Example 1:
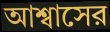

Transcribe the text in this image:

আশ্বাসের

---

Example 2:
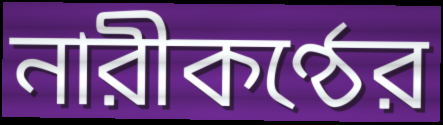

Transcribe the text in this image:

নারীকণ্ঠের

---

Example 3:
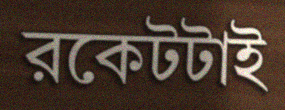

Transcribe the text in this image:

রকেটটাই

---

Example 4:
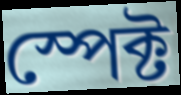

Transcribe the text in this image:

স্পেক্ট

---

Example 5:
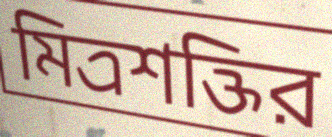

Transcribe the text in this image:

মিত্রশক্তির